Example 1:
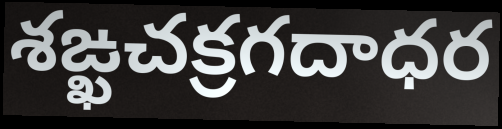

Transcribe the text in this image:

శఙ్ఖచక్రగదాధర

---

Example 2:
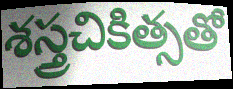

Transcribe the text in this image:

శస్త్రచికిత్సతో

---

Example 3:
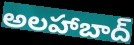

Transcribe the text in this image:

అలహాబాద్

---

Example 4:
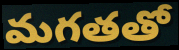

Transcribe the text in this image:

మగతతో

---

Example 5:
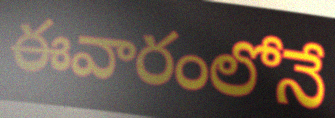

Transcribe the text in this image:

ఈవారంలోనే